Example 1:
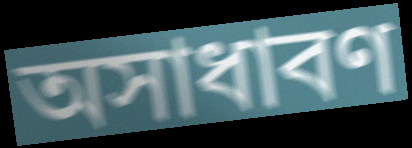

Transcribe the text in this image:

অসাধাবণ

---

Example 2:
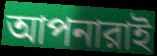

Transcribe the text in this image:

আপনারাই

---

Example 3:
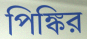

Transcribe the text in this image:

পিঙ্কির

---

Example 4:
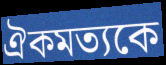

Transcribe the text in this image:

ঐকমত্যকে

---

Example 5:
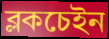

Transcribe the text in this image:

ব্লকচেইন